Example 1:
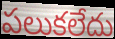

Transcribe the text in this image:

పలుకలేదు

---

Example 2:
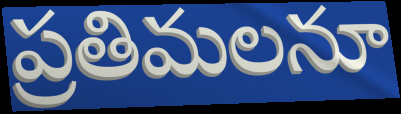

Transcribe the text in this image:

ప్రతిమలనూ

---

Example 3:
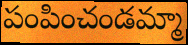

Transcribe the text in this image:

పంపించండమ్మా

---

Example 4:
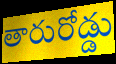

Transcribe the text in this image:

తారురోడ్డు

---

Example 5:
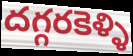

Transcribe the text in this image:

దగ్గరకెళ్ళి